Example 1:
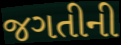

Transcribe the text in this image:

જગતીની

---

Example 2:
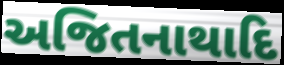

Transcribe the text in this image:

અજિતનાથાદિ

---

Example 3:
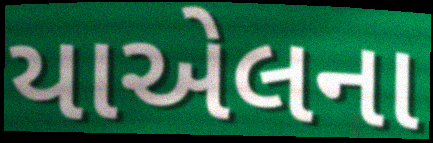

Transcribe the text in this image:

યાએલના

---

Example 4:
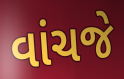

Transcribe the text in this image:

વાંચજે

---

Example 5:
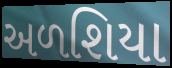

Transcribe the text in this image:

અળશિયા